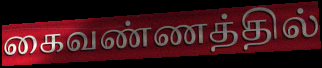
கைவண்ணத்தில்